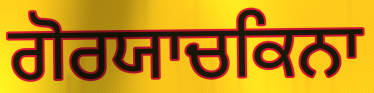
ਗੋਰਯਾਚਕਿਨਾ